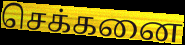
செக்கனை